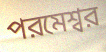
পরমেশ্বর